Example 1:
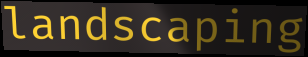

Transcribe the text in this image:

landscaping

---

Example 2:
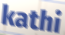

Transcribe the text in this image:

kathi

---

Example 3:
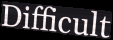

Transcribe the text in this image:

Difficult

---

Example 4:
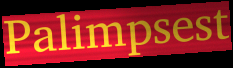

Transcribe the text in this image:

Palimpsest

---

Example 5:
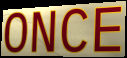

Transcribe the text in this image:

ONCE